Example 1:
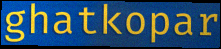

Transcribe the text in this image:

ghatkopar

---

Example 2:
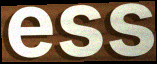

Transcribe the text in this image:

ess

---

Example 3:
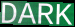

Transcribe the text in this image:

DARK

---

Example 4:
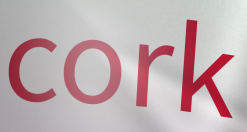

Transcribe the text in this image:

cork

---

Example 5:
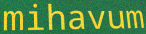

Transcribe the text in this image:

mihavum